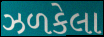
ઝળકેલા